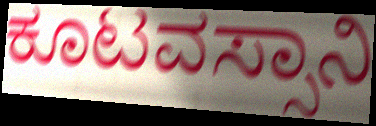
ಕೂಟವಸ್ಸಾನಿ